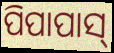
ପିପାପାସ୍